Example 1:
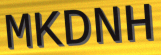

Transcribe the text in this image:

MKDNH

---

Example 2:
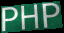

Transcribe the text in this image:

PHP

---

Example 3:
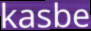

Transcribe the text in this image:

kasbe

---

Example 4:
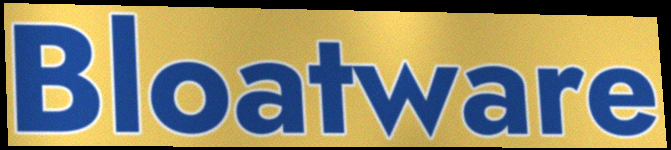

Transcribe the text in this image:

Bloatware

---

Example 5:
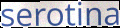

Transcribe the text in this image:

serotina